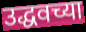
उद्धवच्या